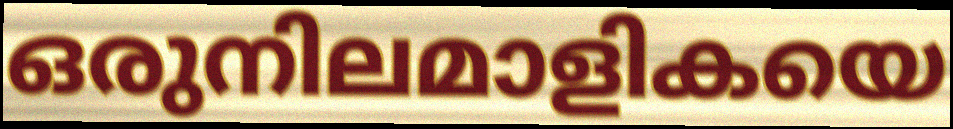
ഒരുനിലമാളികയെ